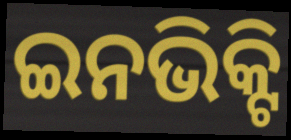
ଇନଭିକ୍ଟି